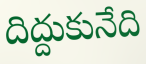
దిద్దుకునేది